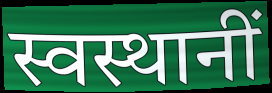
स्वस्थानीं